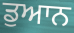
ਡੁਆਨ